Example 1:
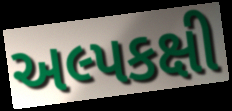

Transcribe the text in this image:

અલ્પકક્ષી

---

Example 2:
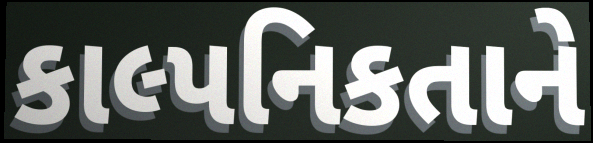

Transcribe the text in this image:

કાલ્પનિકતાને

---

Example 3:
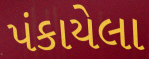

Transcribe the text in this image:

પંકાયેલા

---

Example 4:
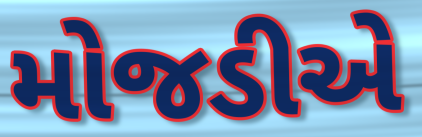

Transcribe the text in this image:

મોજડીએ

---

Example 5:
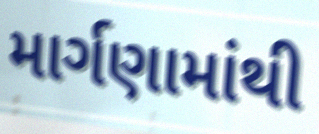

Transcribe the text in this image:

માર્ગણામાંથી